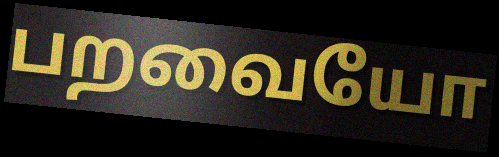
பறவையோ